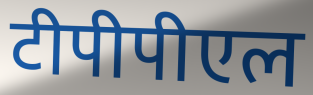
टीपीपीएल